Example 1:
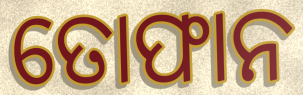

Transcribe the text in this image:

ତୋଫାନ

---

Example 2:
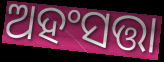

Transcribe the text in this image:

ଅହଂସତ୍ତା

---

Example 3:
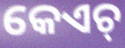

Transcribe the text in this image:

କେଏଚ୍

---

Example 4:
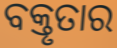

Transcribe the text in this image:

ବକ୍ତୃତାର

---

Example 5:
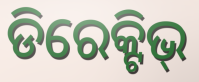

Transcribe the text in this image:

ଡିରେକ୍ଟିଭ୍